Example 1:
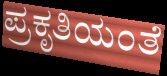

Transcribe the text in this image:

ಪ್ರಕೃತಿಯಂತೆ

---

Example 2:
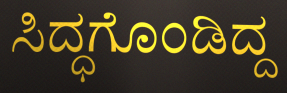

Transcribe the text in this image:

ಸಿದ್ಧಗೊಂಡಿದ್ದ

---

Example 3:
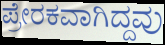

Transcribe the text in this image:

ಪ್ರೇರಕವಾಗಿದ್ದವು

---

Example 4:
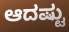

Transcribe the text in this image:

ಆದಷ್ಟು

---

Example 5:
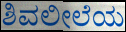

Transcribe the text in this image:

ಶಿವಲೀಲೆಯ